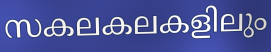
സകലകലകളിലും